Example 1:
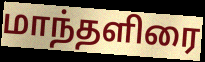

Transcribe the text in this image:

மாந்தளிரை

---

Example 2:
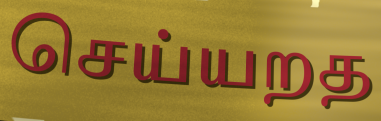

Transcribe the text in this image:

செய்யறத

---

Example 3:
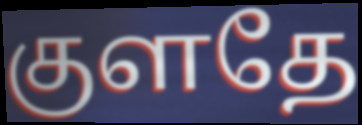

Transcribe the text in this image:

குளதே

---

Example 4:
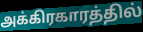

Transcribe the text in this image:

அக்கிரகாரத்தில்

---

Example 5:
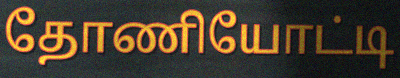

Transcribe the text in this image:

தோணியோட்டி